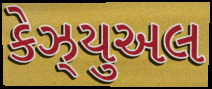
કેઝ્યુઅલ